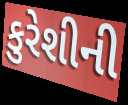
કુરેશીની